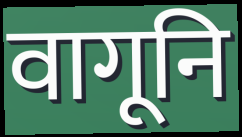
वागूनि